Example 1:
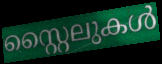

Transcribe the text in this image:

സ്റ്റൈലുകൾ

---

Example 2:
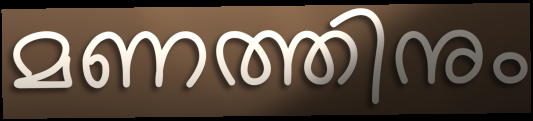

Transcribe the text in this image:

മണത്തിനും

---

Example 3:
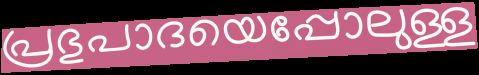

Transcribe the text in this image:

പ്രഭുപാദയെപ്പോലുള്ള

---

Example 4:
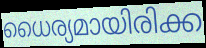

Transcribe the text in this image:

ധൈര്യമായിരിക്ക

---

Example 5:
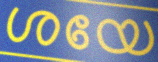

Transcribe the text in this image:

ശയേ